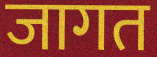
जागत